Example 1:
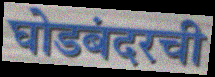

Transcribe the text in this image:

घोडबंदरची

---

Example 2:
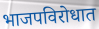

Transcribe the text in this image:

भाजपविरोधात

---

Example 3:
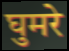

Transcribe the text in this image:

घुमरे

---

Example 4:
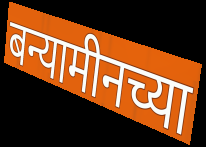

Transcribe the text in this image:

बन्यामीनच्या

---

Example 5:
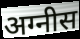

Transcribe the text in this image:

अग्नीस